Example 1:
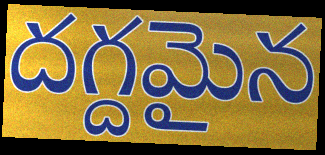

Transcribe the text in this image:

దగ్దమైన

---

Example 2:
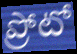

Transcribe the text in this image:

ప్రోటో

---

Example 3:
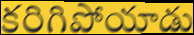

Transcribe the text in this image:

కరిగిపోయాడు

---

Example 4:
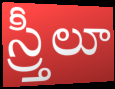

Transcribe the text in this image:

స్ర్తీలూ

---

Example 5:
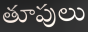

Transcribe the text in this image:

తూపులు